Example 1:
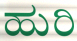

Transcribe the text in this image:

ಹುರಿ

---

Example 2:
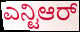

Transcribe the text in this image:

ಎನ್ಟಿಆರ್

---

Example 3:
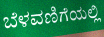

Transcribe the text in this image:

ಬೆಳವಣಿಗೆಯಲ್ಲಿ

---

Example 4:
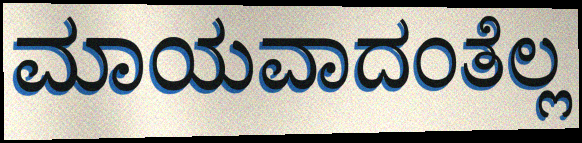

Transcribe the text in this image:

ಮಾಯವಾದಂತೆಲ್ಲ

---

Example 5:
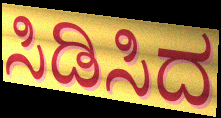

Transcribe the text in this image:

ಸಿಡಿಸಿದ